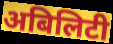
अबिलिटी